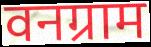
वनग्राम